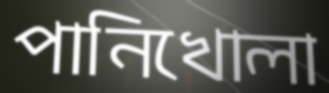
পানিখোলা